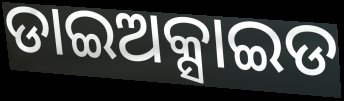
ଡାଇଅକ୍ସାଇଡ